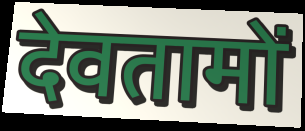
देवतामों